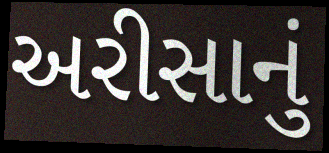
અરીસાનું